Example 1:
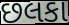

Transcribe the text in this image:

છલકા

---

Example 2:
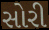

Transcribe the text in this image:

સોરી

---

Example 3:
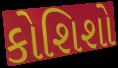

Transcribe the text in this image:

કોશિશો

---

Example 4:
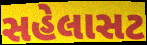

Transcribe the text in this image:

સહેલાસટ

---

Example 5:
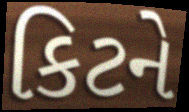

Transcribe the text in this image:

કિટને